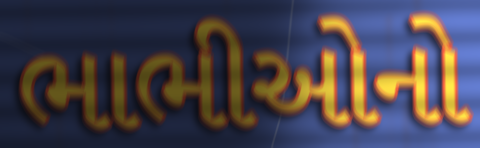
ભાભીઓનો